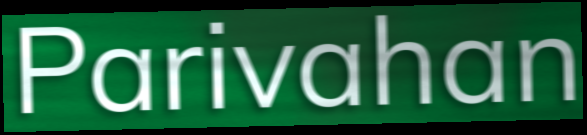
Parivahan